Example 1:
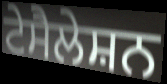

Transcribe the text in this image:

ਟੇਸੈਲੇਸ਼ਨ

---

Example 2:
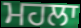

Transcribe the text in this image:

ਮਹਲਾ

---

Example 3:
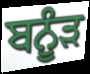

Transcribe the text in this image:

ਬਨੂੰੜ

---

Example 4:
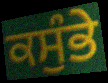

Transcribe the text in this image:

ਕਸੁੰਭੇ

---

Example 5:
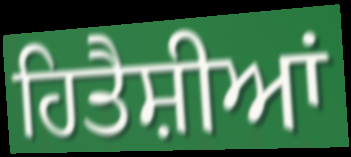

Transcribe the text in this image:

ਹਿਤੈਸ਼ੀਆਂ